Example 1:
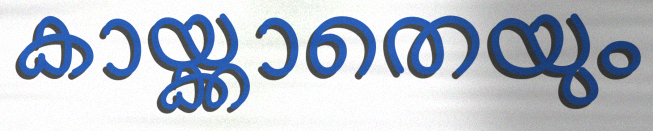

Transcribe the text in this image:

കായ്ക്കാതെയും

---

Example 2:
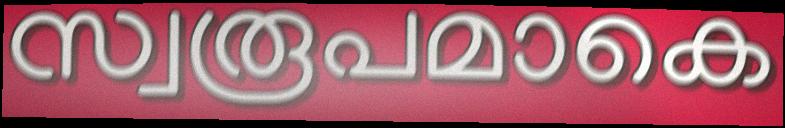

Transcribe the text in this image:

സ്വരൂപമാകെ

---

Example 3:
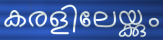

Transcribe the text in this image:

കരളിലേയ്ക്കും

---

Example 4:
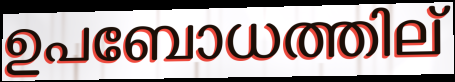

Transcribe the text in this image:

ഉപബോധത്തില്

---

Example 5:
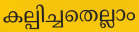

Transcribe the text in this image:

കല്പിച്ചതെല്ലാം